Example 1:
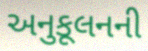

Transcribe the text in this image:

અનુકૂલનની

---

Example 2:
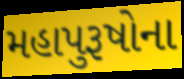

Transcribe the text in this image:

મહાપુરૂષોના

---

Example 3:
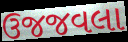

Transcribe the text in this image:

ઉજજવલા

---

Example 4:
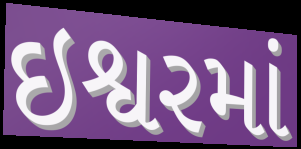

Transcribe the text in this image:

ઇશ્વરમાં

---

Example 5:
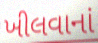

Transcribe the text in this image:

ખીલવાનાં